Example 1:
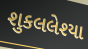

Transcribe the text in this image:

શુકલલેશ્યા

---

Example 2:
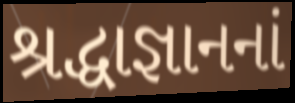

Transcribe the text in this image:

શ્રદ્ધાજ્ઞાનનાં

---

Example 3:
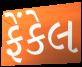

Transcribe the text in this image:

ફેંકેલ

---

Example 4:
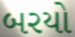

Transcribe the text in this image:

બરયો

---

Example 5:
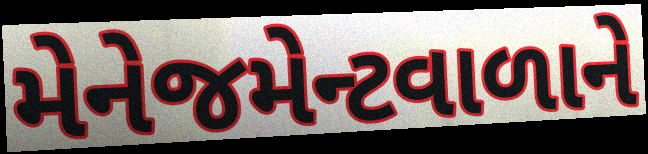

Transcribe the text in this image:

મેનેજમેન્ટવાળાને